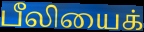
பீலியைக்